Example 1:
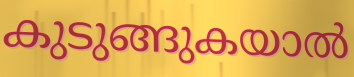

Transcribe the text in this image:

കുടുങ്ങുകയാൽ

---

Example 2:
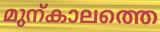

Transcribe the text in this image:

മുന്കാലത്തെ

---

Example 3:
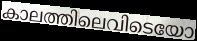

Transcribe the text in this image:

കാലത്തിലെവിടെയോ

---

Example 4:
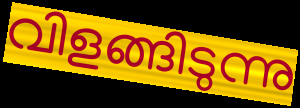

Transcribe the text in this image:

വിളങ്ങിടുന്നു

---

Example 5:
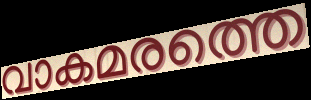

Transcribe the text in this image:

വാകമരത്തെ